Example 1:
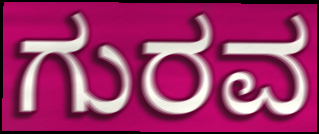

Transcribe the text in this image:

ಗುರವ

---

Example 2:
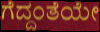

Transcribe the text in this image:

ಗೆದ್ದಂತೆಯೇ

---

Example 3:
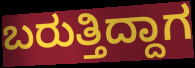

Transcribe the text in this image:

ಬರುತ್ತಿದ್ದಾಗ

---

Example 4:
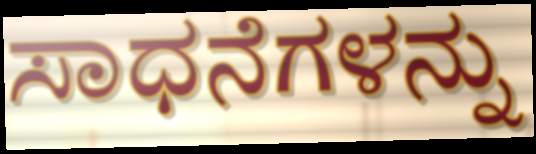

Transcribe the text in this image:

ಸಾಧನೆಗಳನ್ನು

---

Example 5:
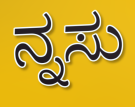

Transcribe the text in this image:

ನ್ನಸು